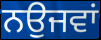
ਨਉਜਵਾਂ